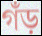
গঁড়